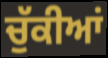
ਚੁੱਕੀਆਂ